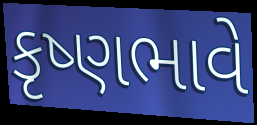
કૃષ્ણભાવે